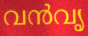
വൻവൃ